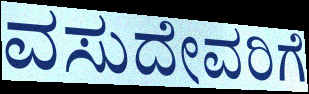
ವಸುದೇವರಿಗೆ